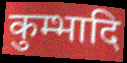
कुम्भादि